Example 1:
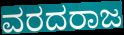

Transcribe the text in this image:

ವರದರಾಜ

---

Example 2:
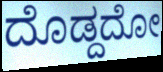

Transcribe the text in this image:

ದೊಡ್ದದೋ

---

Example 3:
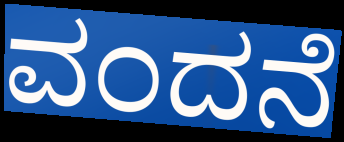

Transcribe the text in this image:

ವಂದನೆ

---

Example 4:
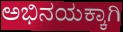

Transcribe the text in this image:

ಅಭಿನಯಕ್ಕಾಗಿ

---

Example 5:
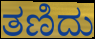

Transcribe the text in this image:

ತಣಿದು